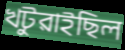
খটুৱাইছিল